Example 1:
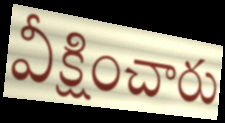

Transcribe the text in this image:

వీక్షించారు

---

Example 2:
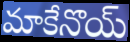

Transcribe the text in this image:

మాకేనొయ్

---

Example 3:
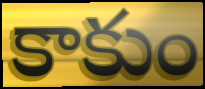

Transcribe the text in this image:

కాకుం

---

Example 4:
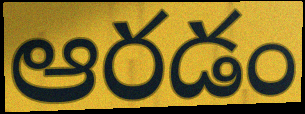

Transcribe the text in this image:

ఆరడం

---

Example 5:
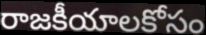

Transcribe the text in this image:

రాజకీయాలకోసం